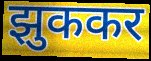
झुककर